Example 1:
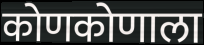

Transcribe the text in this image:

कोणकोणाला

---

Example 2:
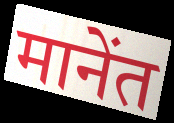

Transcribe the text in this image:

मानेंत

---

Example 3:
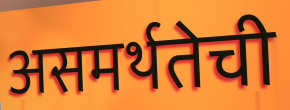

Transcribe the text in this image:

असमर्थतेची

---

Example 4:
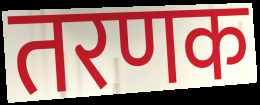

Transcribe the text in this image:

तरणक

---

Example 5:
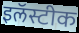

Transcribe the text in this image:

इलॅस्टीक